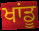
ਖਾਂਡੂ